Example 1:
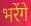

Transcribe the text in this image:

भरेंगे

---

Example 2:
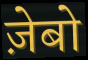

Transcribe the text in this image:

ज़ेबो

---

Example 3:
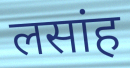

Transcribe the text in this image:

लसांह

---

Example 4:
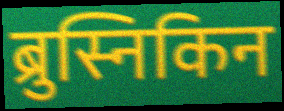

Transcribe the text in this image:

ब्रुस्निकिन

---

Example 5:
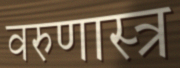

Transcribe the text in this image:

वरुणास्त्र